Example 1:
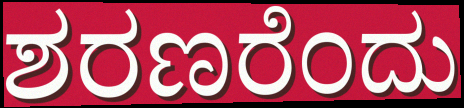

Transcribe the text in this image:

ಶರಣರೆಂದು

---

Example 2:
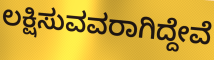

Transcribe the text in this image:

ಲಕ್ಷಿಸುವವರಾಗಿದ್ದೇವೆ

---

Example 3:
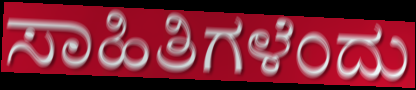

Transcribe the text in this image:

ಸಾಹಿತಿಗಳೆಂದು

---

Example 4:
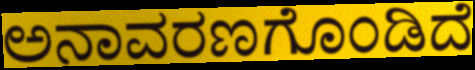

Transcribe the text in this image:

ಅನಾವರಣಗೊಂಡಿದೆ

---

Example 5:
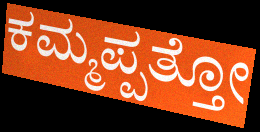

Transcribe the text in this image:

ಕಮ್ಮಪ್ಪತ್ತೋ